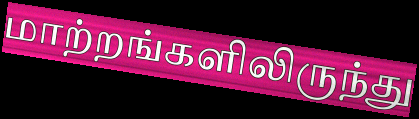
மாற்றங்களிலிருந்து